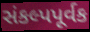
સંકલ્પપૂર્વક